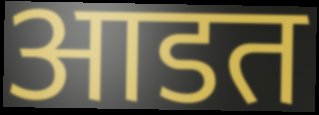
आडत